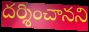
దర్శించానని